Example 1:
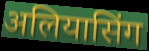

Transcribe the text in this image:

अलियासिंग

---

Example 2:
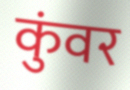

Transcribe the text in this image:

कुंवर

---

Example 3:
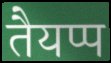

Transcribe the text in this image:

तैयप्प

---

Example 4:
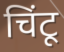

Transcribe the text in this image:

चिंटू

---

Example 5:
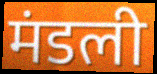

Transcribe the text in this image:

मंडली